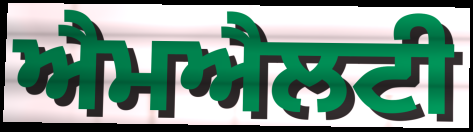
ਐਮਐਲਟੀ